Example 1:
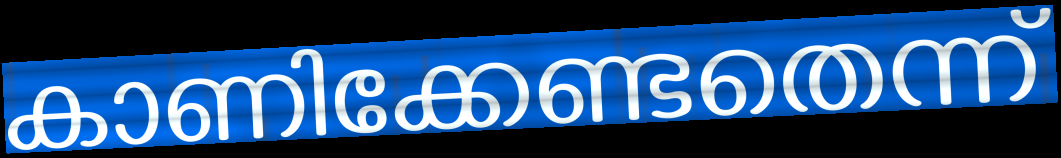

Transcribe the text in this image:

കാണിക്കേണ്ടതെന്ന്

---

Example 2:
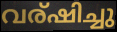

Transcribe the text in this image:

വര്ഷിച്ചു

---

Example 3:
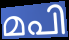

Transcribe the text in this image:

മപി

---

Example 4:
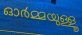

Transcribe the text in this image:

ഓർമ്മയുള്ളൂ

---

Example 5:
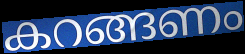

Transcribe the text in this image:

കറങ്ങണം